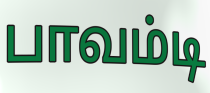
பாவம்டி